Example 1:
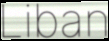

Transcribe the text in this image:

Liban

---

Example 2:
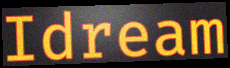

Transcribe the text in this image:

Idream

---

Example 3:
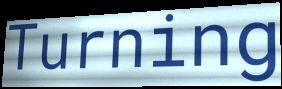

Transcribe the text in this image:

Turning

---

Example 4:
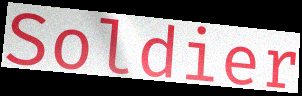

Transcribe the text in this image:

Soldier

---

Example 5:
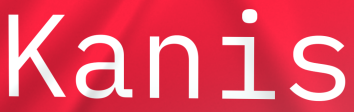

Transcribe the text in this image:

Kanis